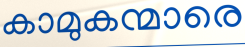
കാമുകന്മാരെ